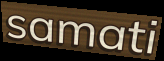
samati